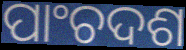
ପାଂଚଦଶ